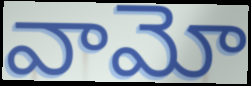
వామో